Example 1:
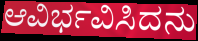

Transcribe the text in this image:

ಆವಿರ್ಭವಿಸಿದನು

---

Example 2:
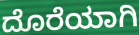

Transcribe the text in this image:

ದೊರೆಯಾಗಿ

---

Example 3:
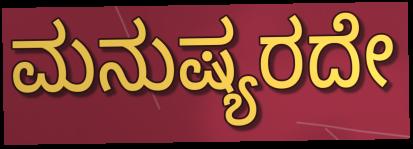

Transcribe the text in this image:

ಮನುಷ್ಯರದೇ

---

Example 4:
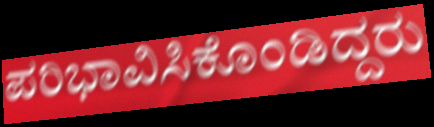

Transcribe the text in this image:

ಪರಿಭಾವಿಸಿಕೊಂಡಿದ್ದರು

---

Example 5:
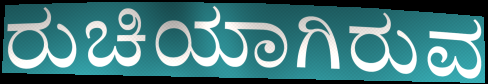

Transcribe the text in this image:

ರುಚಿಯಾಗಿರುವ